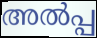
അൽപ്പ